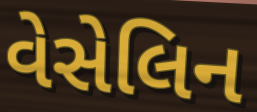
વેસેલિન